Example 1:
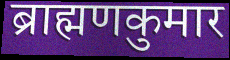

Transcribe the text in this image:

ब्राह्मणकुमार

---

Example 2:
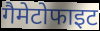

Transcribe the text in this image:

गैमेटोफाइट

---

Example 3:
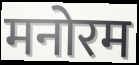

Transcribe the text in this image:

मनोरम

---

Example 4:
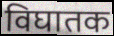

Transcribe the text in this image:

विघातक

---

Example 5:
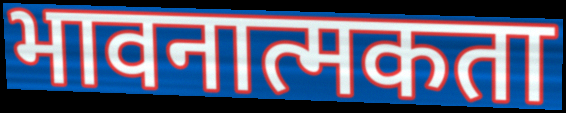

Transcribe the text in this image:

भावनात्मकता